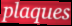
plaques